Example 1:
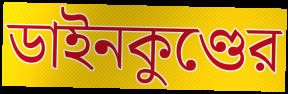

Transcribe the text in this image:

ডাইনকুণ্ডের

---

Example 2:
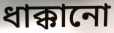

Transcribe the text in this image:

ধাক্কানো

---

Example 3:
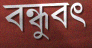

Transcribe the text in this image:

বন্ধুবৎ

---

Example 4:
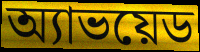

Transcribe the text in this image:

অ্যাভয়েড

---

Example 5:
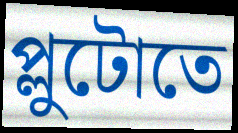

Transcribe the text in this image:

প্লুটোতে